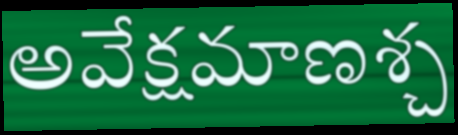
అవేక్షమాణశ్చ